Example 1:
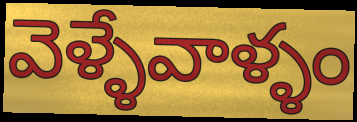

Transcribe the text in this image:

వెళ్ళేవాళ్ళం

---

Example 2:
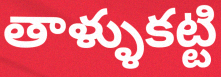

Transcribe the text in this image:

తాళ్ళుకట్టి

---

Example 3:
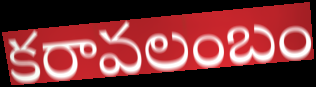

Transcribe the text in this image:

కరావలంబం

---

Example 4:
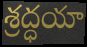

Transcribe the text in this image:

శ్రద్ధయా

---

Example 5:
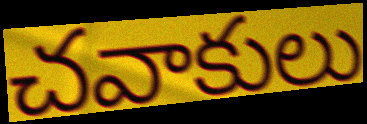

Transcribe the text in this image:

చవాకులు